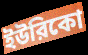
ইউরিকো